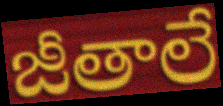
జీతాలే